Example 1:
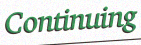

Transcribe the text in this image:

Continuing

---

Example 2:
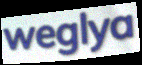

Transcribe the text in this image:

weglya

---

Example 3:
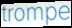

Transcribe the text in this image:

trompe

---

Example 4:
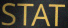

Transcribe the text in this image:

STAT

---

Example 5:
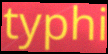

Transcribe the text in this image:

typhi